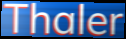
Thaler